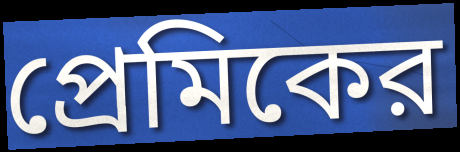
প্রেমিকের